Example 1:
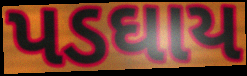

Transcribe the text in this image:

પડઘાય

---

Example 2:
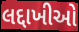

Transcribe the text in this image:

લદ્દાખીઓ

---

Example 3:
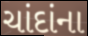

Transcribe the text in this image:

ચાંદાંના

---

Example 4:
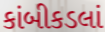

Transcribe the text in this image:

કાંબીકડલાં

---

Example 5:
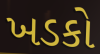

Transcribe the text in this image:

ખડકો